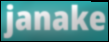
janake